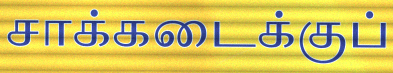
சாக்கடைக்குப்